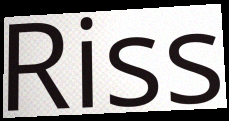
Riss